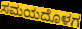
ಸಮಯದೊಳಗ